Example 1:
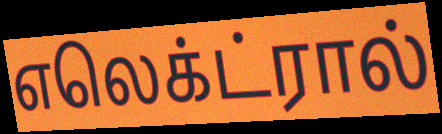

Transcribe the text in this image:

எலெக்ட்ரால்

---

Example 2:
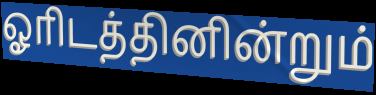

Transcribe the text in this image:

ஓரிடத்தினின்றும்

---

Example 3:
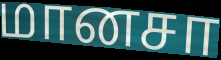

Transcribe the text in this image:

மானசா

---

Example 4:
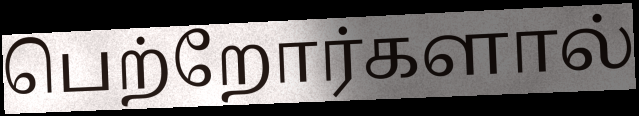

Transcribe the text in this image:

பெற்றோர்களால்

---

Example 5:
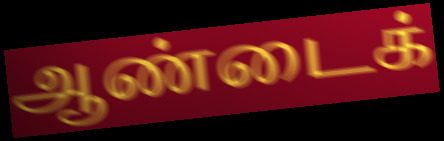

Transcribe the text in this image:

ஆண்டைக்